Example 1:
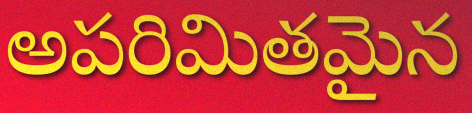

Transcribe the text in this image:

అపరిమితమైన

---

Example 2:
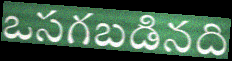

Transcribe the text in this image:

ఒసగబడినది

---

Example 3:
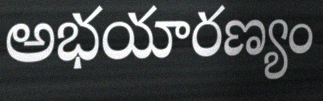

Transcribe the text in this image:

అభయారణ్యం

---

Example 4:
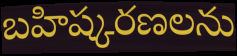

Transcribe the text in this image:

బహిష్కరణలను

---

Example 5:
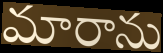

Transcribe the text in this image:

మారాను